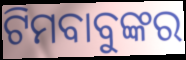
ଟିମବାବୁଙ୍କର